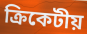
ক্রিকেটীয়